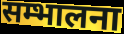
सम्भालना